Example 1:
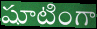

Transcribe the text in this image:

షూటింగా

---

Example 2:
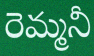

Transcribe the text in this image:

రెమ్మనీ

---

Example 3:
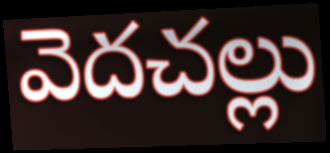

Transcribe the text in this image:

వెదచల్లు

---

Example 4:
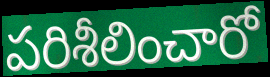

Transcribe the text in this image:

పరిశీలించారో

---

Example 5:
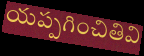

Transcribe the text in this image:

యప్పగించితివి